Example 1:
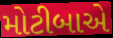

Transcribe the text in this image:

મોટીબાએ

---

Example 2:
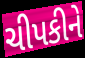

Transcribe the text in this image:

ચીપકીને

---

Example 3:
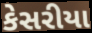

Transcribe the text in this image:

કેસરીયા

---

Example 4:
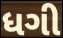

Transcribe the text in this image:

ધગી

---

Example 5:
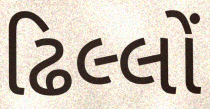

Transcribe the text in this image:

ઢિલ્લોં